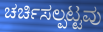
ಚರ್ಚಿಸಲ್ಪಟ್ಟವು